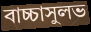
বাচ্চাসুলভ